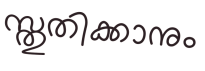
സ്തുതിക്കാനും